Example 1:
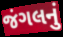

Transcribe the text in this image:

જંગલનું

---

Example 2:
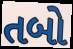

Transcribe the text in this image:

તબો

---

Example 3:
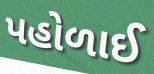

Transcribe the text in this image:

પહોળાઈ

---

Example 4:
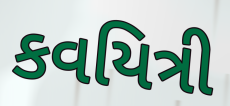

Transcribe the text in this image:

કવયિત્રી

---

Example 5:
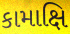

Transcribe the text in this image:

કામાક્ષિ